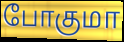
போகுமா